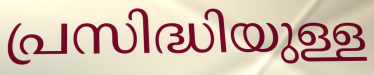
പ്രസിദ്ധിയുള്ള